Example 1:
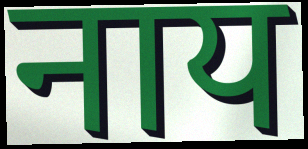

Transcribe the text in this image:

नाय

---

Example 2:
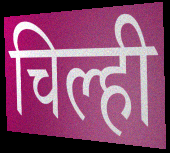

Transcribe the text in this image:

चिल्ही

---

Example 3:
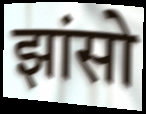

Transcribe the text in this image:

झांसो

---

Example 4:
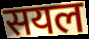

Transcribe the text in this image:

सयल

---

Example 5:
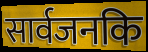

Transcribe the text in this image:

सार्वजनकि